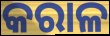
କରାଳ